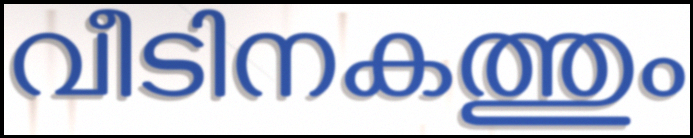
വീടിനകത്തും